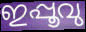
ഇപ്പൂവു